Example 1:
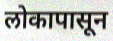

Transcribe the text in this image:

लोकापासून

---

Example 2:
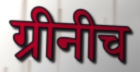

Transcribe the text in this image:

ग्रीनीच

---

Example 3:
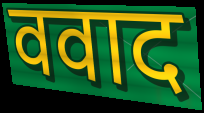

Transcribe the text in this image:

ववाद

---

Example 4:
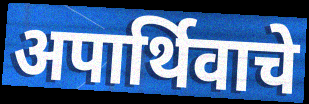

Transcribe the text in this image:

अपार्थिवाचे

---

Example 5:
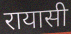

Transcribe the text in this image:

रायासी